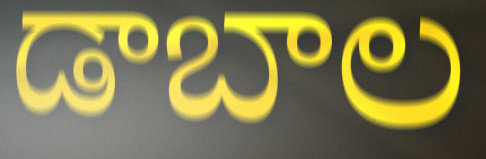
డాబాల